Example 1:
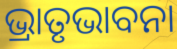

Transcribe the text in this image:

ଭ୍ରାତୃଭାବନା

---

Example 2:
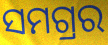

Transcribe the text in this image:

ସମଗ୍ରର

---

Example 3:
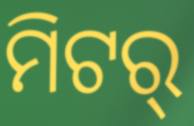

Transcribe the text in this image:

ମିଟର୍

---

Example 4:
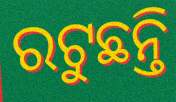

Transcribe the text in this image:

ରଟୁଛନ୍ତି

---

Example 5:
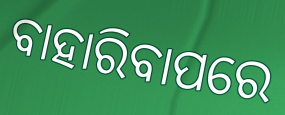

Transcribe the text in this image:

ବାହାରିବାପରେ